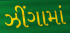
ઝીંગામાં